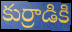
కుర్రాడికి